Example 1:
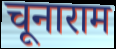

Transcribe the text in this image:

चूनाराम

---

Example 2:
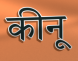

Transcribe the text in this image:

कीनू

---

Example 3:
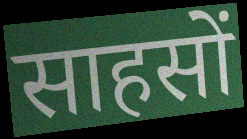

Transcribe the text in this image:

साहसों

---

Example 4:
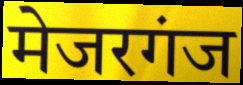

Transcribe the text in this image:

मेजरगंज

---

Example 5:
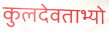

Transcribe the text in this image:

कुलदेवताभ्यो